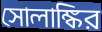
সোলাঙ্কির